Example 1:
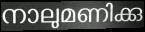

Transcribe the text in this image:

നാലുമണിക്കു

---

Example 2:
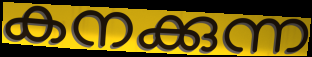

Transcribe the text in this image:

കനക്കുന്ന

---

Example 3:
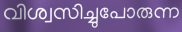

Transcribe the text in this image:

വിശ്വസിച്ചുപോരുന്ന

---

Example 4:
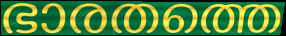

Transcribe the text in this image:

ഭാരതത്തെ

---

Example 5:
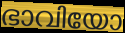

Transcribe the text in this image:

ഭാവിയോ